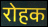
रोहक